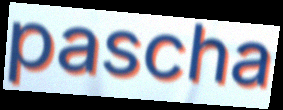
pascha